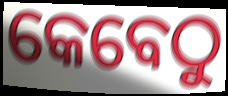
କେବେଠୁ